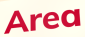
Area